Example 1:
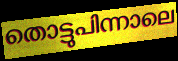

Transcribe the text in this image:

തൊട്ടുപിന്നാലെ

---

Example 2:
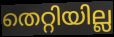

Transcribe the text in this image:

തെറ്റിയില്ല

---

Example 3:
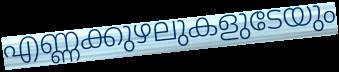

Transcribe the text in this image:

എണ്ണക്കുഴലുകളുടേയും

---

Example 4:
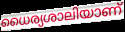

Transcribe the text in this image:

ധൈര്യശാലിയാണ്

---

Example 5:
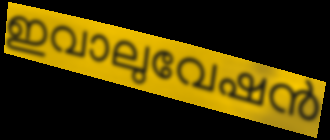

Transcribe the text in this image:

ഇവാലുവേഷൻ